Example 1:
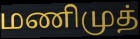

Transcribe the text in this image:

மணிமுத்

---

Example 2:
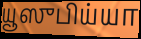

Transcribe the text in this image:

யூஸுபிய்யா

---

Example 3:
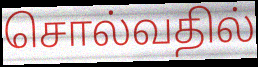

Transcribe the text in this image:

சொல்வதில்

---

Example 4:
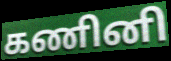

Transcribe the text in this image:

கணினி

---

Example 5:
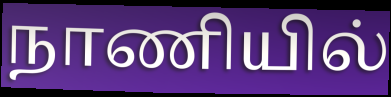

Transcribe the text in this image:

நாணியில்